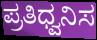
ಪ್ರತಿಧ್ವನಿಸ